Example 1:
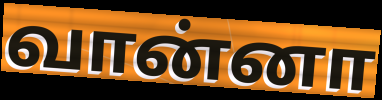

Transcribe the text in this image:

வான்னா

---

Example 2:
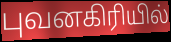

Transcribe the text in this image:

புவனகிரியில்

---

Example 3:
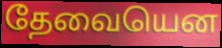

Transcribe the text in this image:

தேவையென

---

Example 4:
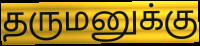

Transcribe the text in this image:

தருமனுக்கு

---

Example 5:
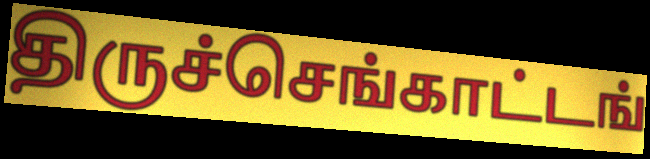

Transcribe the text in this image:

திருச்செங்காட்டங்